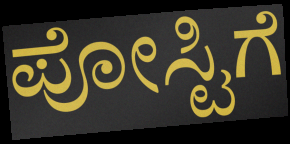
ಪೋಸ್ಟಿಗೆ